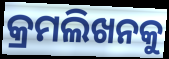
କ୍ରମଲିଖନକୁ